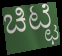
ಚಿಟ್ಟೆ